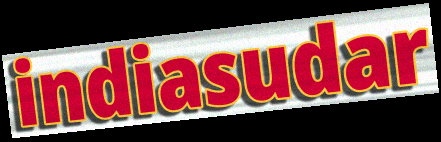
indiasudar